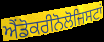
ਐਂਡੋਕਰੀਨੋਲੋਜਿਸਟਾਂ